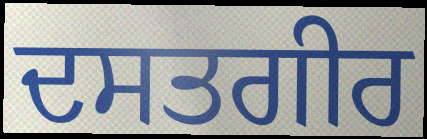
ਦਸਤਗੀਰ